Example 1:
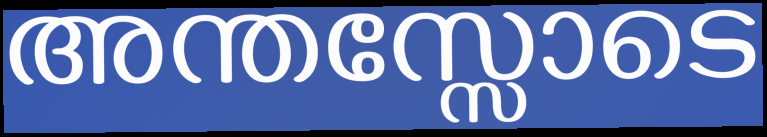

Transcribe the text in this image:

അന്തസ്സോടെ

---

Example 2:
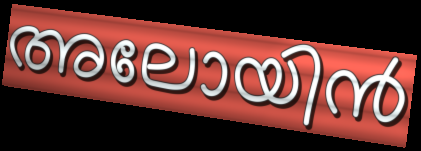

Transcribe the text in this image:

അലോയിൻ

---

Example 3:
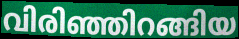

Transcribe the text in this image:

വിരിഞ്ഞിറങ്ങിയ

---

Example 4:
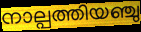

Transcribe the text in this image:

നാല്പത്തിയഞ്ചു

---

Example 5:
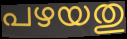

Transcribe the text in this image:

പഴയതു